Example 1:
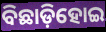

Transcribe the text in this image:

ବିଛାଡ଼ିହୋଇ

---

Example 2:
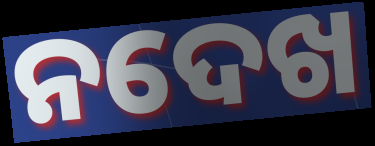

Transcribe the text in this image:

ନଦେଖ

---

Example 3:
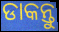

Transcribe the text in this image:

ଡାକନ୍ତୁ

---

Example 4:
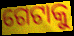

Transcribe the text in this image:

ଗେଟାକୁ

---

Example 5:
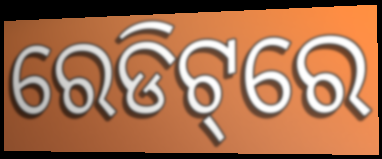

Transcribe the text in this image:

ରେଡିଟ୍‌ରେ